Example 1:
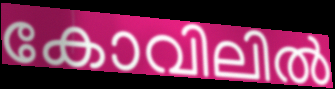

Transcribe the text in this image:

കോവിലിൽ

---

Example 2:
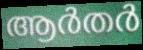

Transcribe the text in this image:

ആർതർ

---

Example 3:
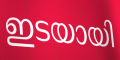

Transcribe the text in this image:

ഇടയായി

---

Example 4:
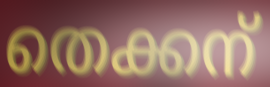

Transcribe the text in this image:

തെക്കന്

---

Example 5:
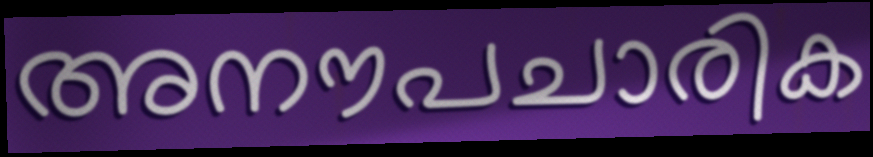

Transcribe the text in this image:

അനൗപചാരിക